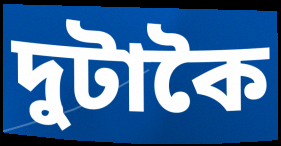
দুটাকৈ